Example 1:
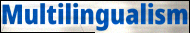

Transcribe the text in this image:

Multilingualism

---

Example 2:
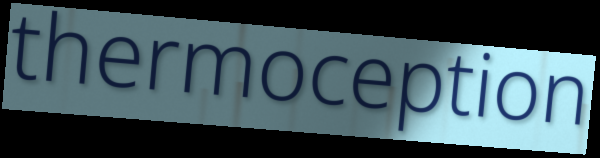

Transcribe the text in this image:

thermoception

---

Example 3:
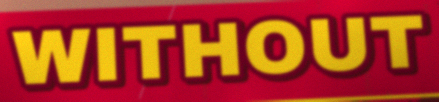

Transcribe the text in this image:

WITHOUT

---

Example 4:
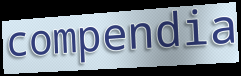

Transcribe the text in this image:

compendia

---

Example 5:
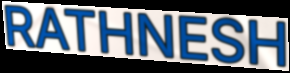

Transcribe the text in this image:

RATHNESH